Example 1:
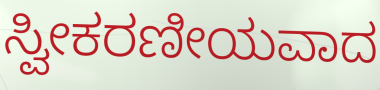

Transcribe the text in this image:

ಸ್ವೀಕರಣೀಯವಾದ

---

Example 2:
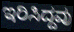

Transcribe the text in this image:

ಇರಿಸಿದ್ದವು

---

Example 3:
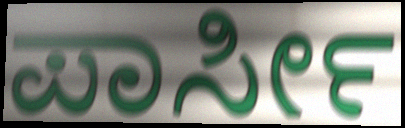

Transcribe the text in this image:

ಪಾರ್ಸೀ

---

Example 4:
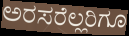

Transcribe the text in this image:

ಅರಸರೆಲ್ಲರಿಗೂ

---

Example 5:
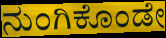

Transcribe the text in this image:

ನುಂಗಿಕೊಂಡೇ